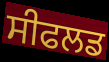
ਸੀਫਲਡ